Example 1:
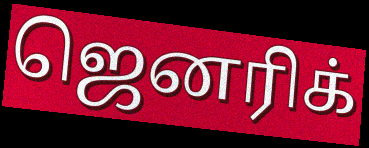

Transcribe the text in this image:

ஜெனரிக்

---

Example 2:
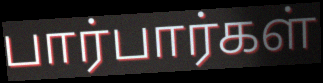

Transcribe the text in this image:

பார்பார்கள்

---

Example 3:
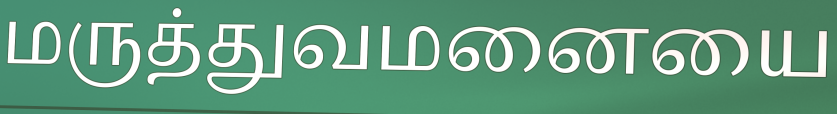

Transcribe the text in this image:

மருத்துவமனையை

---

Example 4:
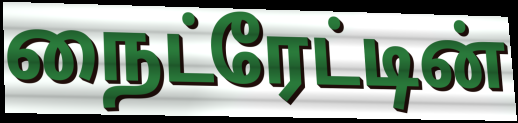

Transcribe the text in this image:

நைட்ரேட்டின்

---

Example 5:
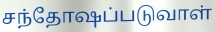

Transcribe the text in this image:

சந்தோஷப்படுவாள்